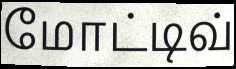
மோட்டிவ்